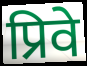
प्रिवे